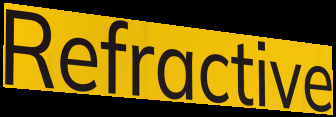
Refractive